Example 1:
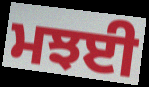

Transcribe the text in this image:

ਮਝਈ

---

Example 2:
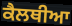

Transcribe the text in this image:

ਕੈਲਥੀਆ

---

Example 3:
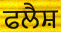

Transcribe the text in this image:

ਫਲੈਸ਼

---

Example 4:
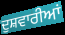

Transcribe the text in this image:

ਦੁਸ਼ਵਾਰੀਆਂ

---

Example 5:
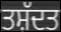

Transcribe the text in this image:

ਤਸ਼ੱਦਤ